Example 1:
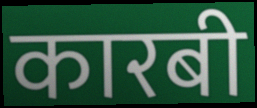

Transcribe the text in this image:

कारबी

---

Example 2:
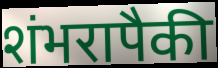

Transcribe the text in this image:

शंभरापैकी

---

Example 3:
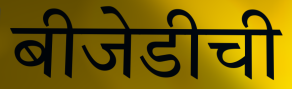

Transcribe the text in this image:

बीजेडीची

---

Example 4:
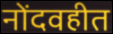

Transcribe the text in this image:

नोंदवहीत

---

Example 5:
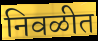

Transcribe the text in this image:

निवळीत